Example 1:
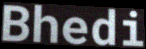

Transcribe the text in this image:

Bhedi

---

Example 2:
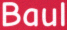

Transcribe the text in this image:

Baul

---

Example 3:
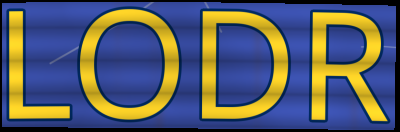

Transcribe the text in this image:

LODR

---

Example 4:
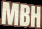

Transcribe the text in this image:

MBH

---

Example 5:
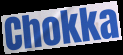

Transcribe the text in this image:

Chokka